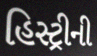
હિસ્ટ્રીની